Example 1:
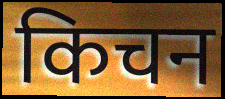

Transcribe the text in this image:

किचन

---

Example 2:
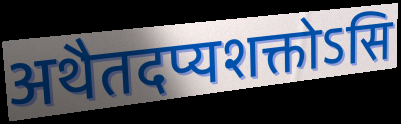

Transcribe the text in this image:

अथैतदप्यशक्तोऽसि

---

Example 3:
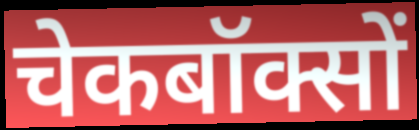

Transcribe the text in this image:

चेकबॉक्सों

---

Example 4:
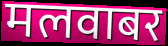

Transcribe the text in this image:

मलवाबर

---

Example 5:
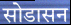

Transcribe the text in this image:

सोडासन